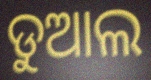
ଡୁଆଲ